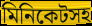
মিনিকেটসহ